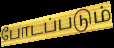
போடப்படும்